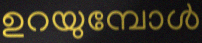
ഉറയുമ്പോൾ